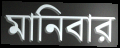
মানিবার